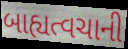
બાહ્યત્વચાની